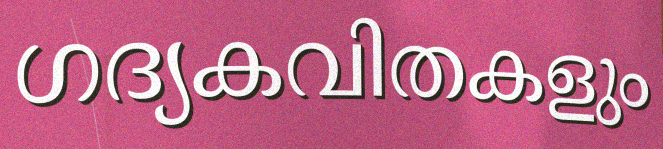
ഗദ്യകവിതകളും